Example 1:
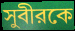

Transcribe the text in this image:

সুবীরকে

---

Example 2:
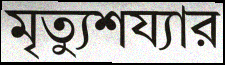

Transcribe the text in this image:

মৃত্যুশয্যার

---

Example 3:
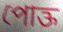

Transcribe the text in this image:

পোক্ত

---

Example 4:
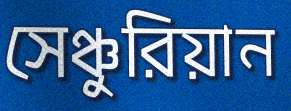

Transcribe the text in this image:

সেঞ্চুরিয়ান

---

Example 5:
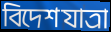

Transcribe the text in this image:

বিদেশযাত্রা